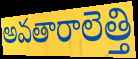
అవతారాలెత్తి